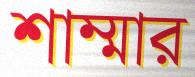
শাম্মার